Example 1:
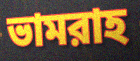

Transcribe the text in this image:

ভামরাহ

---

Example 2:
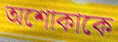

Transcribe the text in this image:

অশোকাকে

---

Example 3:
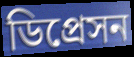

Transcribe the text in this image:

ডিপ্রেসন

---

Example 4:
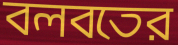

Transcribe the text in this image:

বলবতের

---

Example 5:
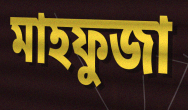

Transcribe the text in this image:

মাহফুজা